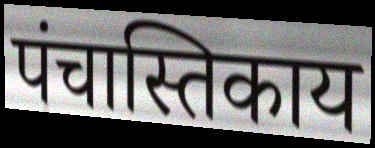
पंचास्तिकाय